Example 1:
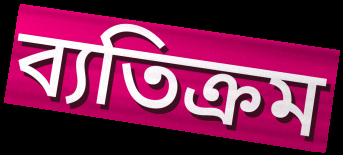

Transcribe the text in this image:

ব্যতিক্ৰম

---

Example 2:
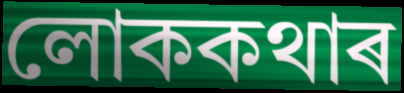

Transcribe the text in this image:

লোককথাৰ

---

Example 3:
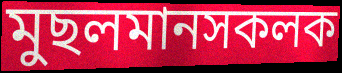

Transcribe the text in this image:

মুছলমানসকলক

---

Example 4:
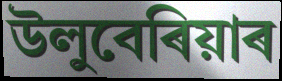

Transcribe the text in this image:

উলুবেৰিয়াৰ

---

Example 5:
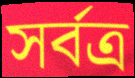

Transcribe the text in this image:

সৰ্বত্ৰ